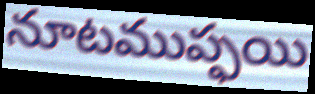
నూటముప్ఫయి